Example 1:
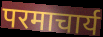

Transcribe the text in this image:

परमाचार्य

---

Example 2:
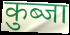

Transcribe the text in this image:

कुब्जा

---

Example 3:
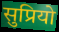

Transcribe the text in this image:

सुप्रियो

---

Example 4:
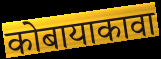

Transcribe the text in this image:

कोबायाकावा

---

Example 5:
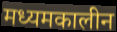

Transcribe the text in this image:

मध्यमकालीन